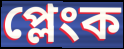
প্লেংক